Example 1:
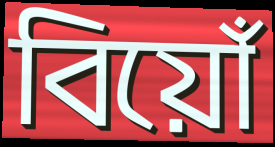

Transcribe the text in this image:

বিয়োঁ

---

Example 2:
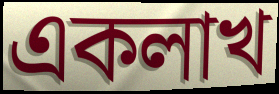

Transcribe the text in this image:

একলাখ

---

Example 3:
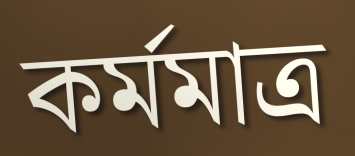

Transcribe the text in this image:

কর্মমাত্র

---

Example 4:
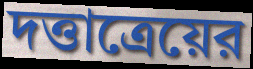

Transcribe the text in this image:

দত্তাত্রেয়ের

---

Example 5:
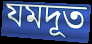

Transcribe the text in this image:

যমদূত